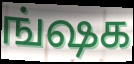
ங்ஷக